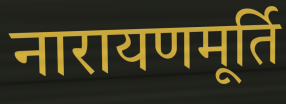
नारायणमूर्ति